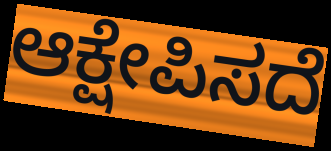
ಆಕ್ಷೇಪಿಸದೆ